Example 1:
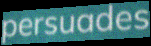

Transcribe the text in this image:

persuades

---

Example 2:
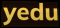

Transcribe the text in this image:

yedu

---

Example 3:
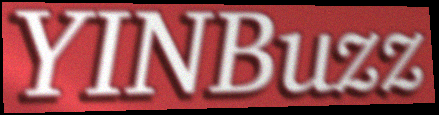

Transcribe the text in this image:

YINBuzz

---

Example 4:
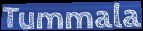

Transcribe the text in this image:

Tummala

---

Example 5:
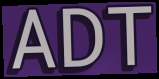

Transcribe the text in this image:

ADT